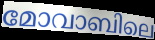
മോവാബിലെ